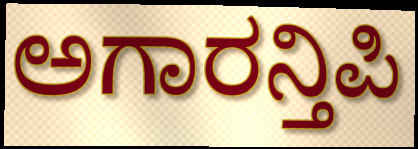
ಅಗಾರನ್ತಿಪಿ